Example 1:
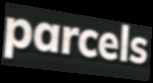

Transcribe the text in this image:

parcels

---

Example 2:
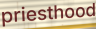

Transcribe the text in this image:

priesthood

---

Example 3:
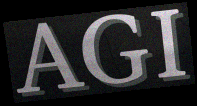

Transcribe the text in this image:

AGI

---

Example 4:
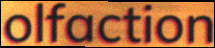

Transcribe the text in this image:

olfaction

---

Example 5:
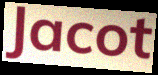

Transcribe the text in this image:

Jacot